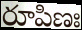
రూపిణః